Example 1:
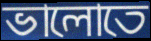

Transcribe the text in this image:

ভালোতে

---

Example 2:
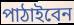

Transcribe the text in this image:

পাঠাইবেন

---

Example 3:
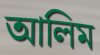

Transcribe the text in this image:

আলিম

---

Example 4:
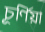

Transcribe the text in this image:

চূর্ণিয়া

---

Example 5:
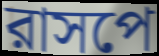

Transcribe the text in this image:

রাসপে